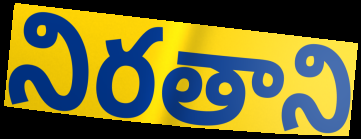
నిరతాని